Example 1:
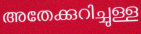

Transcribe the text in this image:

അതേക്കുറിച്ചുള്ള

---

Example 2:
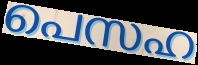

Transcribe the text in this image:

പെസഹ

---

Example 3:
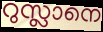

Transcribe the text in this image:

റുസ്ലാനെ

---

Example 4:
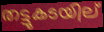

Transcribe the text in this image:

തട്ടുകടയില്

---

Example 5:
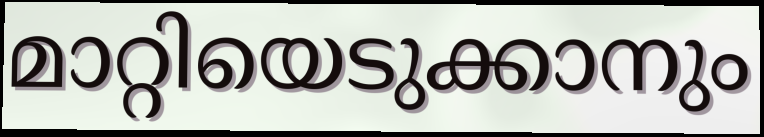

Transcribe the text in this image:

മാറ്റിയെടുക്കാനും